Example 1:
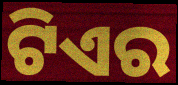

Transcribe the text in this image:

ଟିଏର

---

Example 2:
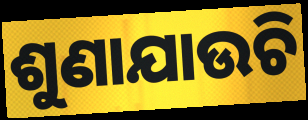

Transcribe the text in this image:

ଶୁଣାଯାଉଚି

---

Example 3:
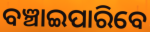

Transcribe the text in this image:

ବଞ୍ଚାଇପାରିବେ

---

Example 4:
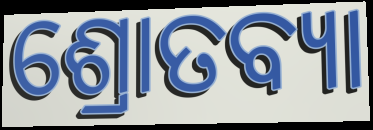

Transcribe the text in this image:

ଶ୍ରୋତବ୍ୟା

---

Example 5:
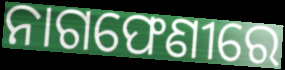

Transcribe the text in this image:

ନାଗଫେଣୀରେ